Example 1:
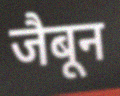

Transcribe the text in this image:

जैबून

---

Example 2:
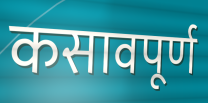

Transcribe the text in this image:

कसावपूर्ण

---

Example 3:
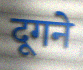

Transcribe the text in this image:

दूगने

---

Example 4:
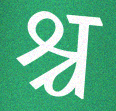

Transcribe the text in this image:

श्च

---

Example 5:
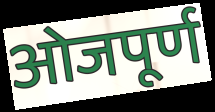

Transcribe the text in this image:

ओजपूर्ण